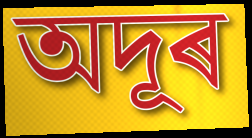
অদূৰ